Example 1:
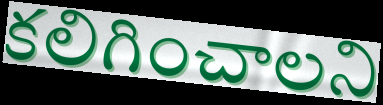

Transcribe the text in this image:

కలిగించాలని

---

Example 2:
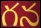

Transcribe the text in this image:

గన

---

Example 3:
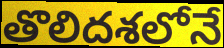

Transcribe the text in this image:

తొలిదశలోనే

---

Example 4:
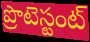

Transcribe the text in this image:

ప్రొటెస్టంట్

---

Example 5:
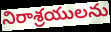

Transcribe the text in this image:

నిరాశ్రయులను